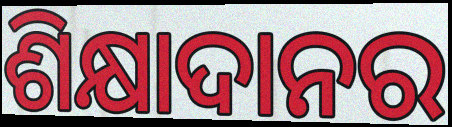
ଶିକ୍ଷାଦାନର